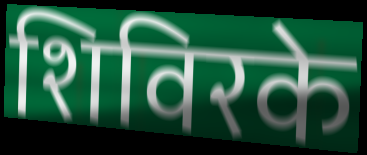
शिविरके